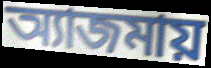
অ্যাজমায়